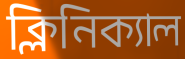
ক্লিনিক্যাল